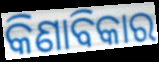
କିଣାବିକାର